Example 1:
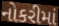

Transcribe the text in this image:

નોકરીમાં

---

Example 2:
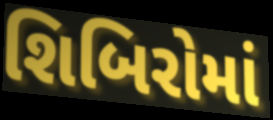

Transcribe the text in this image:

શિબિરોમાં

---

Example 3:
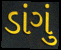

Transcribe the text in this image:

ડાંગું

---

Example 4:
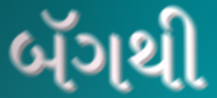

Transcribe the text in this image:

બૅગથી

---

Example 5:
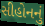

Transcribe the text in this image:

સીહોનનું